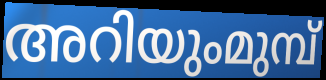
അറിയുംമുമ്പ്